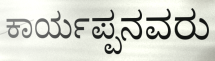
ಕಾರ್ಯಪ್ಪನವರು